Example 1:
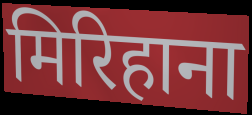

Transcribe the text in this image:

मिरिहाना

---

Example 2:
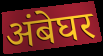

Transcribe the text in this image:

अंबेघर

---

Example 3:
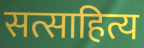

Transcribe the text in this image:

सत्साहित्य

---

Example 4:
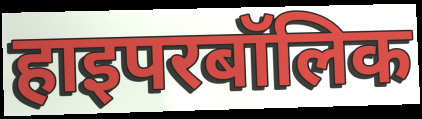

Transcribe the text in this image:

हाइपरबॉलिक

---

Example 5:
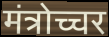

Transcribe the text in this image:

मंत्रोच्चर